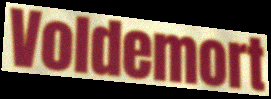
Voldemort